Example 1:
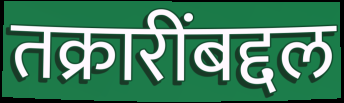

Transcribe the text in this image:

तक्रारींबद्दल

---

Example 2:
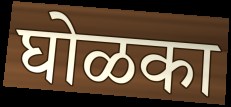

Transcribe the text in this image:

घोळका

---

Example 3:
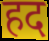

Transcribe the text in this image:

हद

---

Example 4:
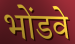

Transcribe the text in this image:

भोंडवे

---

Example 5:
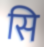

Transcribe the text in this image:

सि